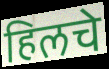
हिलचे